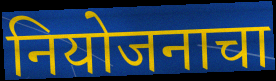
नियोजनाचा